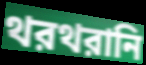
থরথরানি